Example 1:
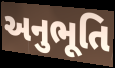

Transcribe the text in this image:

અનુભૂતિ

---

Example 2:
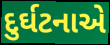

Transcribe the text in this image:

દુર્ઘટનાએ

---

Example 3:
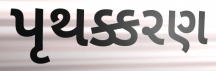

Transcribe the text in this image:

પૃથક્કરણ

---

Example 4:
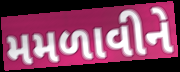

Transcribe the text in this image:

મમળાવીને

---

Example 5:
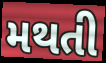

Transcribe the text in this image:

મથતી